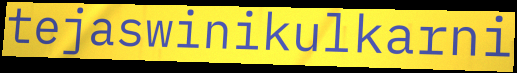
tejaswinikulkarni